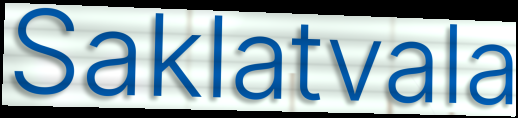
Saklatvala